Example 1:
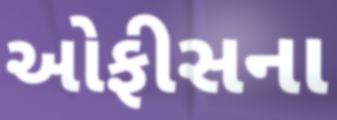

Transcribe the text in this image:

ઓફીસના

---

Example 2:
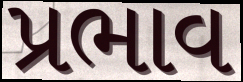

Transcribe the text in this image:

પ્રભાવ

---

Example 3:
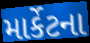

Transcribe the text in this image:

માર્કેટના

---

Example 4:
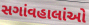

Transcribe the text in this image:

સગાંવહાલાંઓ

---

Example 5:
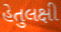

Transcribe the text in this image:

હેતુલક્ષી